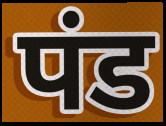
पंड